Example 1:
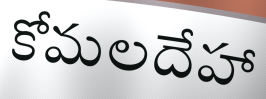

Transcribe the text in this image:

కోమలదేహా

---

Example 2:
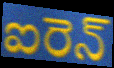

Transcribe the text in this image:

ఐరెన్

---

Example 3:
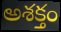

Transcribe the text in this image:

అశక్తం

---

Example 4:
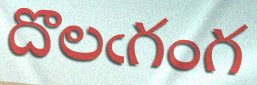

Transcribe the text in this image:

దొలఁగంగ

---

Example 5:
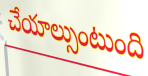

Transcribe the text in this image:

చేయాల్సుంటుంది